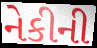
નેકીની